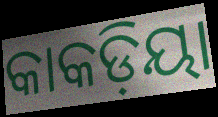
କାକଡ଼ିୟା